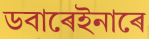
ডবাৰেইনাৰে